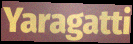
Yaragatti